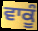
ਵਾਕੂੰ